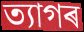
ত্যাগৰ